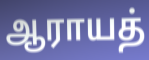
ஆராயத்